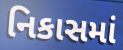
નિકાસમાં